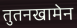
तुतनखामेन